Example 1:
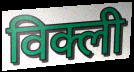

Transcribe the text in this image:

विक्ली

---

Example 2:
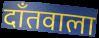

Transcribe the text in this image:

दाँतवाला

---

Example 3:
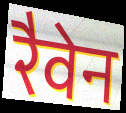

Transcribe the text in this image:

रैवेन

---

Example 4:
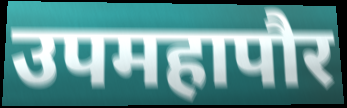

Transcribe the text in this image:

उपमहापौर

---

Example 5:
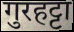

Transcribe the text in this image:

गुरहट्टा